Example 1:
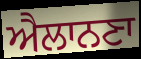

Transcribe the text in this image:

ਐਲਾਨਣਾ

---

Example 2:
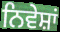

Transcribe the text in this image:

ਨਿਵੇਸ਼ਾਂ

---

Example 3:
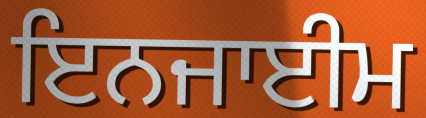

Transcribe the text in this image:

ਇਨਜਾਈਮ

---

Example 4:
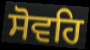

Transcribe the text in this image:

ਸੋਵਹਿ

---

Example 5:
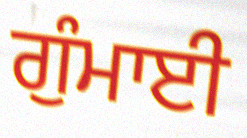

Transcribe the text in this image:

ਗੁੰਮਾਈ